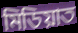
মিডিয়াত